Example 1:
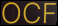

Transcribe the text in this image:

OCF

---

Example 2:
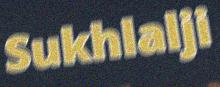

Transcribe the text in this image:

Sukhlalji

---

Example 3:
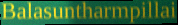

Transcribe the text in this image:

Balasuntharmpillai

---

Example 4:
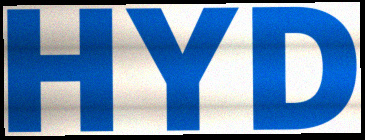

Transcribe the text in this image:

HYD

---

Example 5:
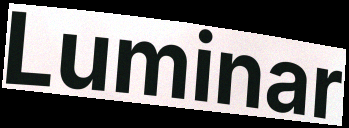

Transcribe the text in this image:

Luminar